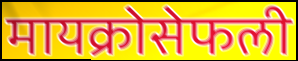
मायक्रोसेफली